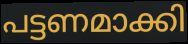
പട്ടണമാക്കി